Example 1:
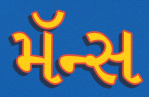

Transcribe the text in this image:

મૅન્સ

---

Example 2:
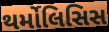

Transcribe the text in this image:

થર્મોલિસિસ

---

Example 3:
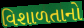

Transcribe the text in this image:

વિશાળતાનો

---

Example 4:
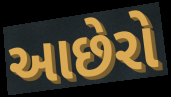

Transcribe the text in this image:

આછેરો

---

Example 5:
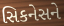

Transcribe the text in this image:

સિકનેસને